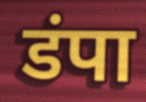
डंपा